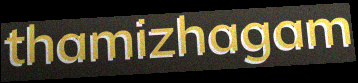
thamizhagam